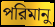
পরিমানু